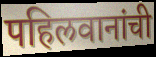
पहिलवानांची